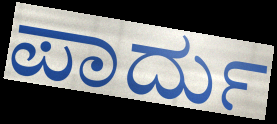
ಪಾರ್ದು